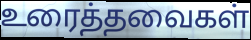
உரைத்தவைகள்